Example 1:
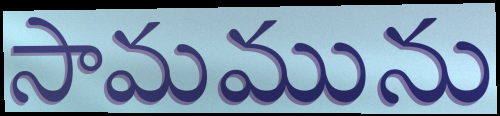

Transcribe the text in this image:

సామమును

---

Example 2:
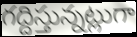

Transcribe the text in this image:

గద్దిస్తున్నట్లుగా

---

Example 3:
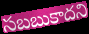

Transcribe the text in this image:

సబబుకాదని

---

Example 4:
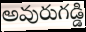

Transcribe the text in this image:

అవురుగడ్డి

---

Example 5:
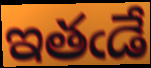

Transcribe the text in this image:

ఇతఁడే